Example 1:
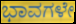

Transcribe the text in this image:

ಭಾವಗಳೇ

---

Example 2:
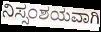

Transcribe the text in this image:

ನಿಸ್ಸಂಶಯವಾಗಿ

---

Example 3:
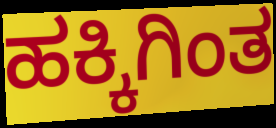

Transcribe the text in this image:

ಹಕ್ಕಿಗಿಂತ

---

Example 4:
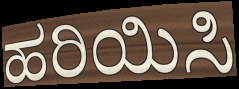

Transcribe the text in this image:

ಹರಿಯಿಸಿ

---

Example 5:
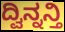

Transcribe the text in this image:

ದ್ವಿನ್ನನ್ತಿ